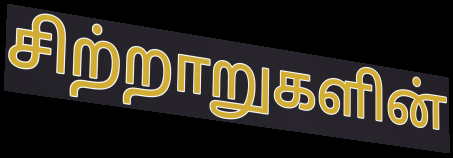
சிற்றாறுகளின்